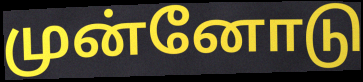
முன்னோடு